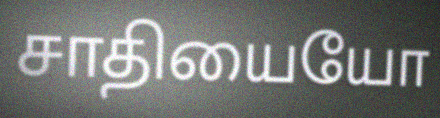
சாதியையோ